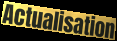
Actualisation